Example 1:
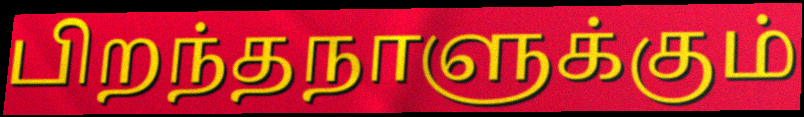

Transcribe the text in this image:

பிறந்தநாளுக்கும்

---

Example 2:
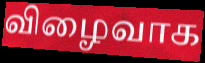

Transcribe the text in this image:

விழைவாக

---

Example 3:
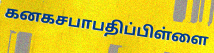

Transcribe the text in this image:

கனகசபாபதிப்பிள்ளை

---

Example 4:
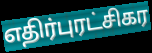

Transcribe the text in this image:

எதிர்புரட்சிகர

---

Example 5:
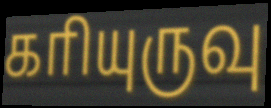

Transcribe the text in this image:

கரியுருவு